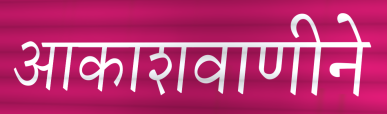
आकाशवाणीने